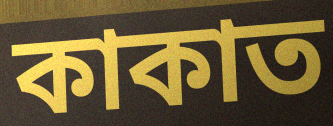
কাকাত